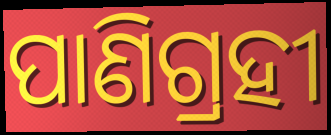
ପାଣିଗ୍ରହୀ